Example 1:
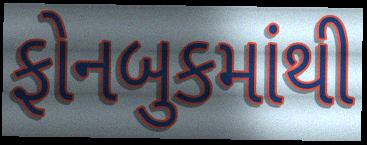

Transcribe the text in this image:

ફોનબુકમાંથી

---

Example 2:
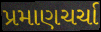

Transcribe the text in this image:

પ્રમાણચર્ચા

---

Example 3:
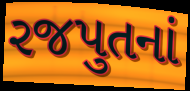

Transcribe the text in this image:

રજપુતનાં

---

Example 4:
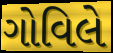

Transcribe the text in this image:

ગોવિલે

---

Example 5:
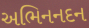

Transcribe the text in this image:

અભિનનદન